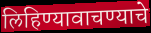
लिहिण्यावाचण्याचे